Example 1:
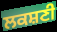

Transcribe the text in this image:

ਲਕਸ਼ਣੀ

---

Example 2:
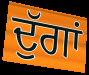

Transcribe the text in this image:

ਦੁੱਗਾਂ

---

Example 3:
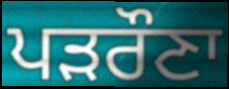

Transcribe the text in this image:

ਪੜਰੌਣਾ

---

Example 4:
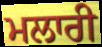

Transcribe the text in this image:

ਮਲਾਰੀ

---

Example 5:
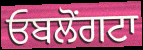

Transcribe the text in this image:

ਓਬਲੋਂਗਟਾ